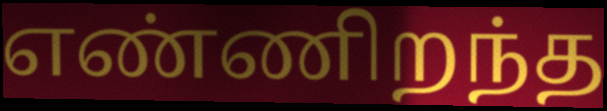
எண்ணிறந்த